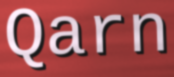
Qarn